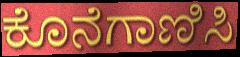
ಕೊನೆಗಾಣಿಸಿ